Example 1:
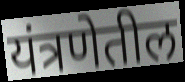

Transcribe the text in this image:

यंत्रणेतील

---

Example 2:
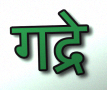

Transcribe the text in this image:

गद्रे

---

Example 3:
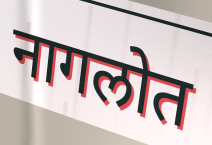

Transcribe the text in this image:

नागलोत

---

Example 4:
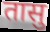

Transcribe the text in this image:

तासु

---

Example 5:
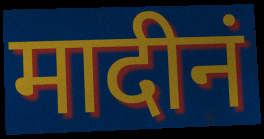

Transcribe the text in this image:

मादीनं